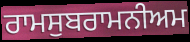
ਰਾਮਸੁਬਰਾਮਨੀਅਮ